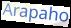
Arapaho